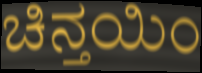
ಚಿನ್ತಯಿಂ